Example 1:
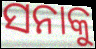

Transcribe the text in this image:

ସନାକୁ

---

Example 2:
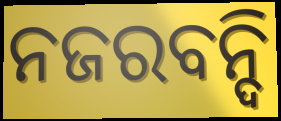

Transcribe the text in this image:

ନଜରବନ୍ଦି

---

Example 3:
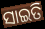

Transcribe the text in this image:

ସାଇତି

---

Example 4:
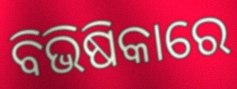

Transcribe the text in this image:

ବିଭିଷିକାରେ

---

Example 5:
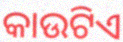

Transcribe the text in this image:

କାଉଟିଏ